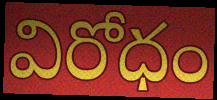
విరోధం